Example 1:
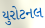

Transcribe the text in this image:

યુરોટનલ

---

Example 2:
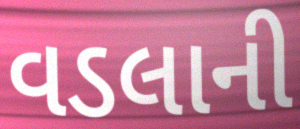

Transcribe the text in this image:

વડલાની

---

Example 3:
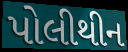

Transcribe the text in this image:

પોલીથીન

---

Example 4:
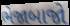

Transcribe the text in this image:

ભેજાબાજો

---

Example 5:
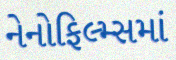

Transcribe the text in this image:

નેનોફિલ્મ્સમાં